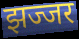
झज्जर